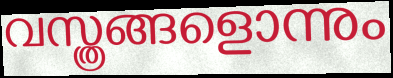
വസ്ത്രങ്ങളൊന്നും